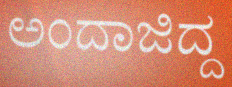
ಅಂದಾಜಿದ್ದ